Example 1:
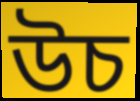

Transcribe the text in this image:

উচ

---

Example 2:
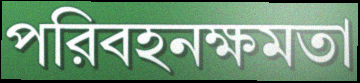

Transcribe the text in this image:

পরিবহনক্ষমতা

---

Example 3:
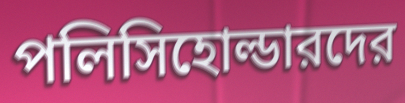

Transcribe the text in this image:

পলিসিহোল্ডারদের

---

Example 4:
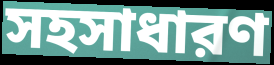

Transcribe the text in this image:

সহসাধারণ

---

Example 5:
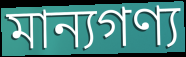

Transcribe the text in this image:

মান্যগণ্য